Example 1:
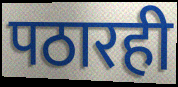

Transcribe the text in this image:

पठारही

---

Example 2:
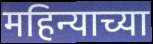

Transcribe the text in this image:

महिन्याच्या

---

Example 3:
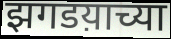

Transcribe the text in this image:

झगडय़ाच्या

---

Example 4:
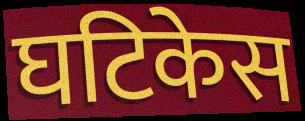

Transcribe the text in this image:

घटिकेस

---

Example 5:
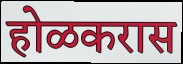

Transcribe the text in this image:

होळकरास